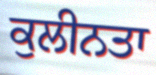
ਕੁਲੀਨਤਾ